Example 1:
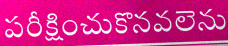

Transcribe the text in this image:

పరీక్షించుకొనవలెను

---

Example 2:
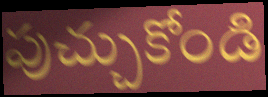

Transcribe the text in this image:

పుచ్చుకోండి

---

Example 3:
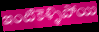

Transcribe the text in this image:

ఇంటికెళ్ళిపోయి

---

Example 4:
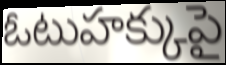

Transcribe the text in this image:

ఓటుహక్కుపై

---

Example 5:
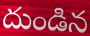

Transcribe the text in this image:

దుండిన